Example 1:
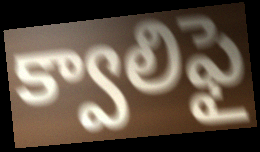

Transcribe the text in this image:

క్వాలిఫై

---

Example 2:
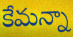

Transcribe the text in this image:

కేమన్నా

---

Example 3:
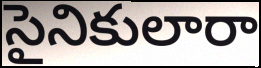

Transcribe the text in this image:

సైనికులారా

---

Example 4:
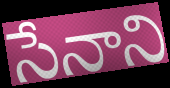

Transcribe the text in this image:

సేనాని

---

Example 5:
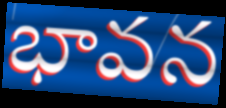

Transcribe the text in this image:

భావన